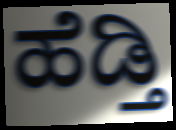
ಹೆಡ್ತಿ